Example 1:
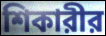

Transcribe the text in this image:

শিকারীর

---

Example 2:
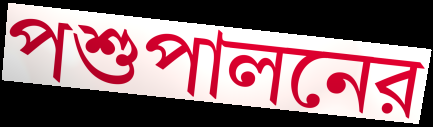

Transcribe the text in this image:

পশুপালনের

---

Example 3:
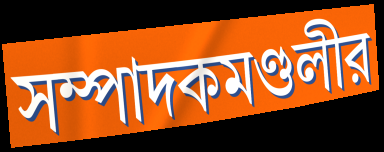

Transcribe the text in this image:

সম্পাদকমণ্ডলীর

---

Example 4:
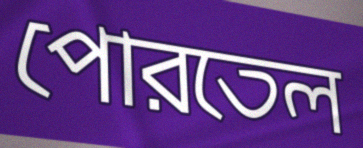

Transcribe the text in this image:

পোরতেল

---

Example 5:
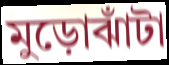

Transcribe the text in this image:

মুড়োঝাঁটা